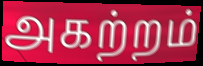
அகற்றம்